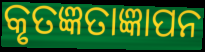
କୃତଜ୍ଞତାଜ୍ଞାପନ